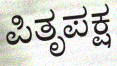
ಪಿತೃಪಕ್ಷ